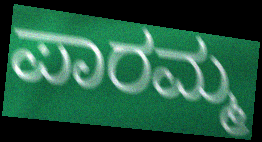
ಪಾರಮ್ಮ